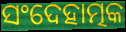
ସଂଦେହାତ୍ମକ